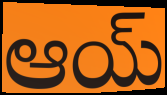
ఆయ్